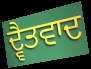
ਦ੍ਵੈਤਵਾਦ